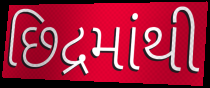
છિદ્રમાંથી